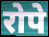
रोपे